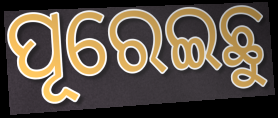
ପୂରେଇଛୁ